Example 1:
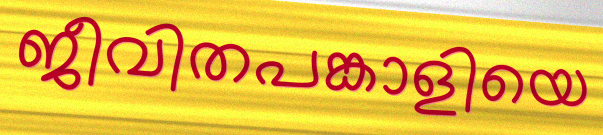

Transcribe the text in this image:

ജീവിതപങ്കാളിയെ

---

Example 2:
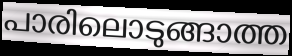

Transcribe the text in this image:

പാരിലൊടുങ്ങാത്ത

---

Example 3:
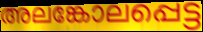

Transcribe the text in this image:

അലങ്കോലപ്പെട്ട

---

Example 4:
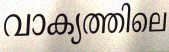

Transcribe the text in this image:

വാക്യത്തിലെ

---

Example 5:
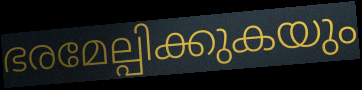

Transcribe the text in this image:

ഭരമേല്പിക്കുകയും